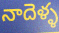
నాదెళ్ళ